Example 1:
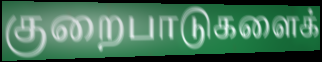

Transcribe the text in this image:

குறைபாடுகளைக்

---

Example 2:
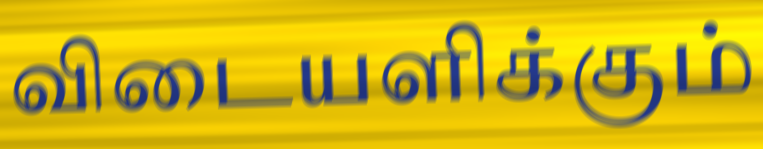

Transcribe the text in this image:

விடையளிக்கும்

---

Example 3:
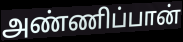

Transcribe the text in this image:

அண்ணிப்பான்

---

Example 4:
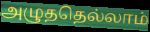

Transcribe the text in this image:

அழுததெல்லாம்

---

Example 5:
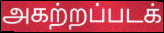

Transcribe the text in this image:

அகற்றப்படக்